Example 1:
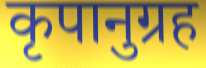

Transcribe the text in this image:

कृपानुग्रह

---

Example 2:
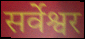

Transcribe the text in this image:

सर्वेश्वर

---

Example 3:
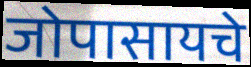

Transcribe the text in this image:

जोपासायचे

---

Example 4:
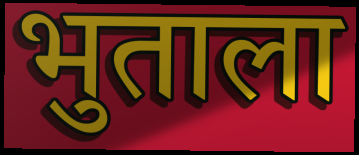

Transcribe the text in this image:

भुताला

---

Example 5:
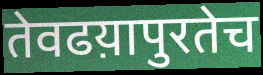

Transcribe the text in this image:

तेवढय़ापुरतेच